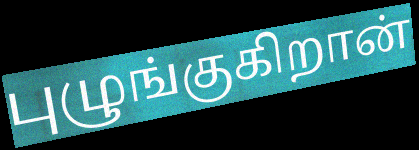
புழுங்குகிறான்